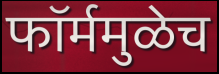
फॉर्ममुळेच